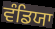
ਵੰਡਿਯਾ